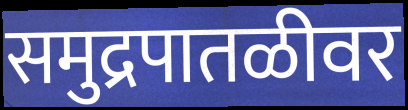
समुद्रपातळीवर